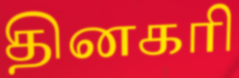
தினகரி